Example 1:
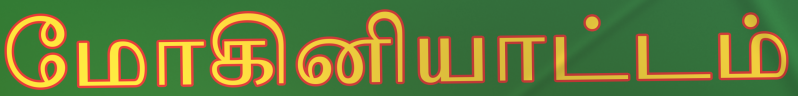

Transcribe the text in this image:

மோகினியாட்டம்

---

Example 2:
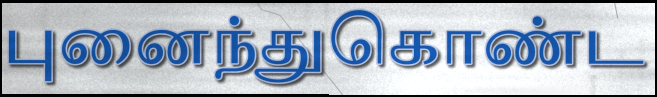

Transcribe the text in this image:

புனைந்துகொண்ட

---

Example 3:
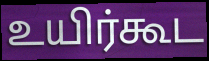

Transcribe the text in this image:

உயிர்கூட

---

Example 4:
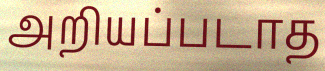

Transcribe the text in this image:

அறியப்படாத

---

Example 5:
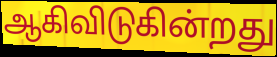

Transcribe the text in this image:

ஆகிவிடுகின்றது